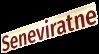
Seneviratne